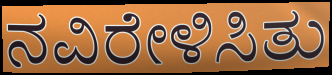
ನವಿರೇಳಿಸಿತು